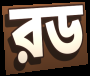
রড